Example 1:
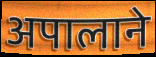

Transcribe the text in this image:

अपालाने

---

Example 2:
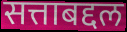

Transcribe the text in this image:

सत्ताबद्दल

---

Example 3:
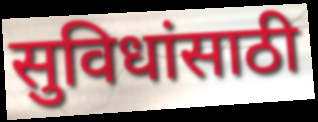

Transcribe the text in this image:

सुविधांसाठी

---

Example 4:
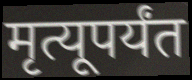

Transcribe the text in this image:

मृत्यूपर्यंत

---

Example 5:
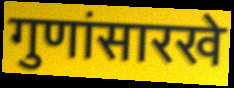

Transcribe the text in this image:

गुणांसारखे